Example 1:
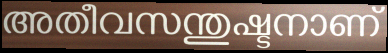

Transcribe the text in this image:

അതീവസന്തുഷ്ടനാണ്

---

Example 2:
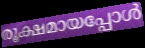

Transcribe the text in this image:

രൂക്ഷമായപ്പോൾ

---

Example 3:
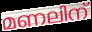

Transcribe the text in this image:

മണലിന്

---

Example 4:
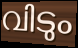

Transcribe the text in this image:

വിടും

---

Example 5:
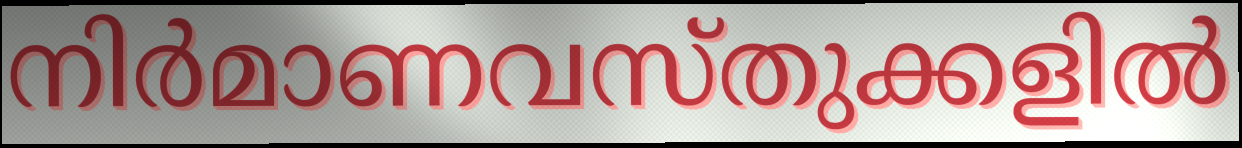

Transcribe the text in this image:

നിർമാണവസ്തുക്കളിൽ